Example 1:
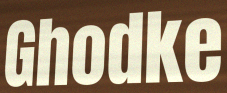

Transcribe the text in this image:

Ghodke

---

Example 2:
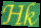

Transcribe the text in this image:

Hk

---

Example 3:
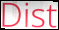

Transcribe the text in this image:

Dist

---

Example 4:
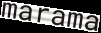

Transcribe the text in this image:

marama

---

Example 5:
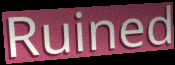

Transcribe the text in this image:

Ruined